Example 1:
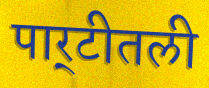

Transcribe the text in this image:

पार्टीतली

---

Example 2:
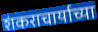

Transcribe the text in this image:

शंकराचार्याच्या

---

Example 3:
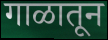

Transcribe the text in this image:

गाळातून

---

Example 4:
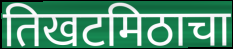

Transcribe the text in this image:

तिखटमिठाचा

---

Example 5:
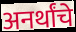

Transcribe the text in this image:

अनर्थांचे